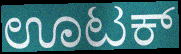
ಊಟಕ್